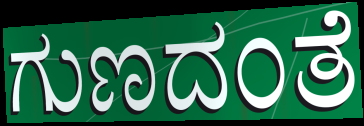
ಗುಣದಂತೆ